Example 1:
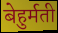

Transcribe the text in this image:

बेहुर्मती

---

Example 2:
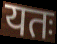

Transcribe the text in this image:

यतः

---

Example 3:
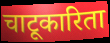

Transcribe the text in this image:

चाटूकारिता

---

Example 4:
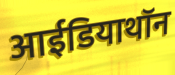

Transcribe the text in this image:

आईडियाथॉन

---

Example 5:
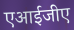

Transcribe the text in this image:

एआईजीए